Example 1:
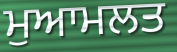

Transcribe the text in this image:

ਮੁਆਮਲਤ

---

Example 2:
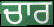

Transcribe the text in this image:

ਚਾਰ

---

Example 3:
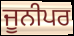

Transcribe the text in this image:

ਜੂਨੀਪਰ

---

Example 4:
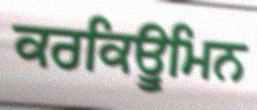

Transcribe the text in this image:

ਕਰਕਿਊਮਿਨ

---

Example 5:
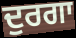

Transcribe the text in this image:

ਦੁਰਗਾ